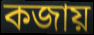
কজায়